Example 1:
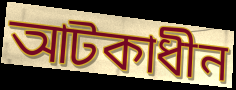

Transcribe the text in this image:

আটকাধীন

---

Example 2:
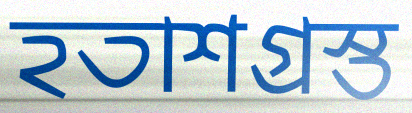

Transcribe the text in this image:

হতাশগ্ৰস্ত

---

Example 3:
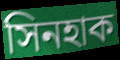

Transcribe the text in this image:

সিনহাক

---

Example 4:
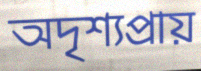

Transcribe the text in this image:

অদৃশ্যপ্ৰায়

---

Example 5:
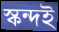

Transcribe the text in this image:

স্কন্দই